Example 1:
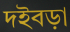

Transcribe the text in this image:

দইবড়া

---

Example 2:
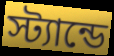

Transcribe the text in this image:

স্ট্যান্ডে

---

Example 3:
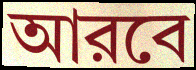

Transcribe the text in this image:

আরবে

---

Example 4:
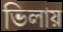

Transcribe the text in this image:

ভিলায়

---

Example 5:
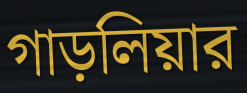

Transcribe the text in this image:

গাড়লিয়ার